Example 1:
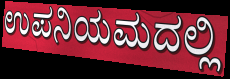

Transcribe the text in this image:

ಉಪನಿಯಮದಲ್ಲಿ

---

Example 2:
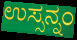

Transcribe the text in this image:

ಉಸ್ಸನ್ನಂ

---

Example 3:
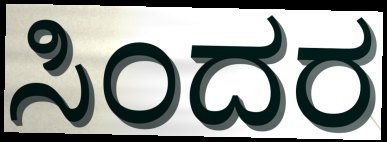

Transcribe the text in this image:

ಸಿಂದರ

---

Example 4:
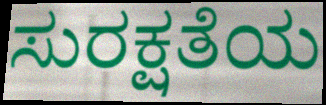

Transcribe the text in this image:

ಸುರಕ್ಷತೆಯ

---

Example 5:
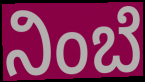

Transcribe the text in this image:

ನಿಂಬೆ